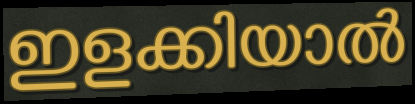
ഇളക്കിയാൽ